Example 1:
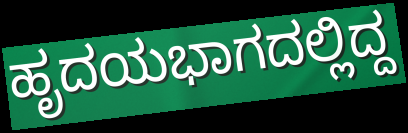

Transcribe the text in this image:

ಹೃದಯಭಾಗದಲ್ಲಿದ್ದ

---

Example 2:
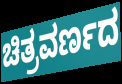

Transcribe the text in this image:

ಚಿತ್ರವರ್ಣದ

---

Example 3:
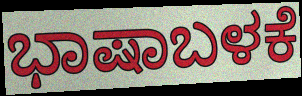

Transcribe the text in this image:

ಭಾಷಾಬಳಕೆ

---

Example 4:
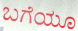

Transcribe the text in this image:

ಬಗೆಯೂ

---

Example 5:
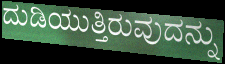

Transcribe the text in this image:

ದುಡಿಯುತ್ತಿರುವುದನ್ನು